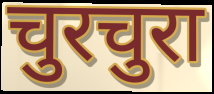
चुरचुरा